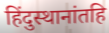
हिंदुस्थानांतहि